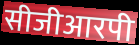
सीजीआरपी